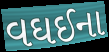
વઘઈના